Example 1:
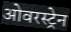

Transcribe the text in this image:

ओवरस्ट्रेन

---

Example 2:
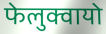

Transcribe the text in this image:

फेलुक्वायो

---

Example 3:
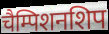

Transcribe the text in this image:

चैम्पिशनशिप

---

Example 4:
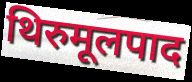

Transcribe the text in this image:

थिरुमूलपाद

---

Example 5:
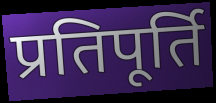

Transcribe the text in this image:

प्रतिपूर्ति